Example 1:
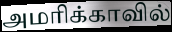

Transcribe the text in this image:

அமரிக்காவில்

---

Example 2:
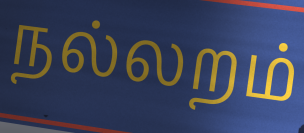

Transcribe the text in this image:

நல்லறம்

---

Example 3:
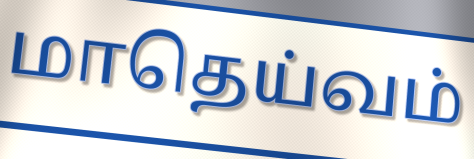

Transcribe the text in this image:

மாதெய்வம்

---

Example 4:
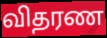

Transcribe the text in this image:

விதரண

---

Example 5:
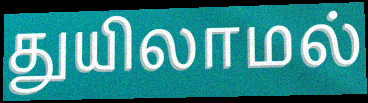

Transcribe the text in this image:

துயிலாமல்